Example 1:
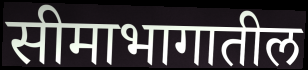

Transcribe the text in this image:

सीमाभागातील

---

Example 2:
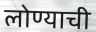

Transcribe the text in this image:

लोण्याची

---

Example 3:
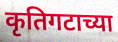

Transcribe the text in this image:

कृतिगटाच्या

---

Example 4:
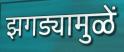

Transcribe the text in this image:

झगड्यामुळें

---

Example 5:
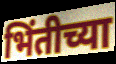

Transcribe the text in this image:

भिंतीच्या